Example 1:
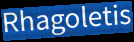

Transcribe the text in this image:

Rhagoletis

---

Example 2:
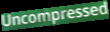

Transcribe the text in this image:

Uncompressed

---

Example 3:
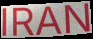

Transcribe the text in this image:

IRAN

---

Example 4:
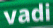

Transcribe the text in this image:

vadi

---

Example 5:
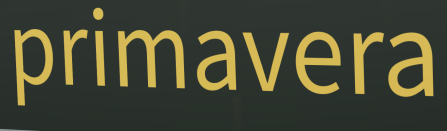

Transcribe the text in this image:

primavera